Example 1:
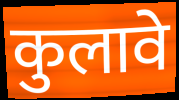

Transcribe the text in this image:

कुलावे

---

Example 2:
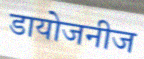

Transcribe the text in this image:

डायोजनीज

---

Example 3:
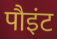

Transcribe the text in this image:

पौइंट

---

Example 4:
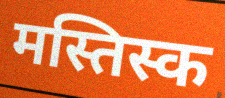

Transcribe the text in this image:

मस्तिस्क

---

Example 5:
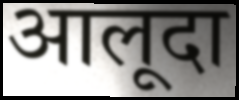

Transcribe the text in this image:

आलूदा